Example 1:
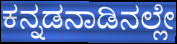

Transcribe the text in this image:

ಕನ್ನಡನಾಡಿನಲ್ಲೇ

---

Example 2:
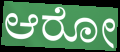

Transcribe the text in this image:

ಆರೋ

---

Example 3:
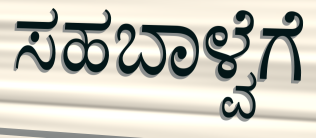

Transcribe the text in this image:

ಸಹಬಾಳ್ವೆಗೆ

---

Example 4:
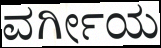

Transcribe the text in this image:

ವರ್ಗೀಯ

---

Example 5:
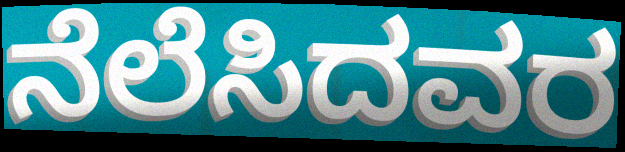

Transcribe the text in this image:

ನೆಲೆಸಿದವರ